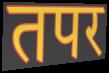
तपर